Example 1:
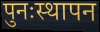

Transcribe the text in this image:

पुनःस्थापन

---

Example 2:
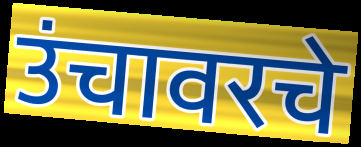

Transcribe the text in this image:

उंचावरचे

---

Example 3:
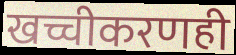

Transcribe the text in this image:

खच्चीकरणही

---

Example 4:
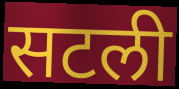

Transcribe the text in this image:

सटली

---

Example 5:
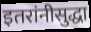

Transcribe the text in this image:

इतरांनीसुद्धा